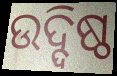
ଉଦ୍ଦିଷ୍ଠ